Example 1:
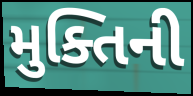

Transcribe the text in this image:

મુક્તિની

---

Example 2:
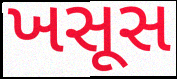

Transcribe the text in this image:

ખસૂસ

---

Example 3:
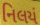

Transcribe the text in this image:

નિલયં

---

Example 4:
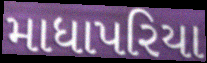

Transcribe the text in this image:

માધાપરિયા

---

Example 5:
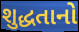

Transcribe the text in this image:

શુદ્ધતાનો